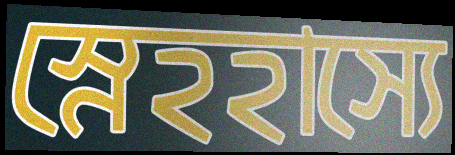
স্নেহহাস্যে